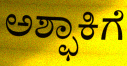
ಅಶ್ಫಾಕಿಗೆ